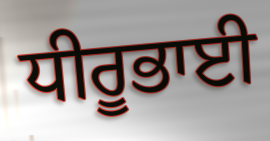
ਧੀਰੂਭਾਈ